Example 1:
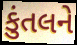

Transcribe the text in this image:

કુંતલને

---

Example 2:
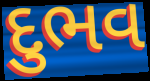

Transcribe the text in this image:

દુભવ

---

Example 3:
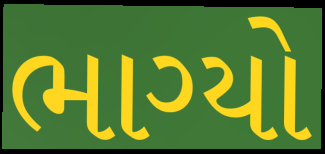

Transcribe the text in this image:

ભાગ્યો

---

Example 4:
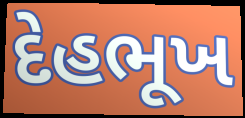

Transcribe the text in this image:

દેહભૂખ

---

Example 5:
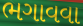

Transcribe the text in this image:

ભગાવવા